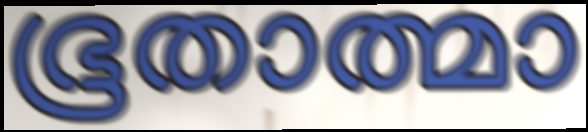
ഭൂതാത്മാ